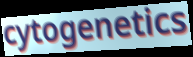
cytogenetics